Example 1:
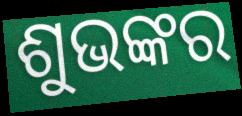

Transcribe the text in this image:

ଶୁଭଙ୍କର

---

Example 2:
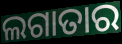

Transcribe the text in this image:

ଲଗାତାର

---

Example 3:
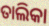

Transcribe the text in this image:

ତାଲିକା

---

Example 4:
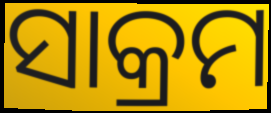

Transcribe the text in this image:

ସାକ୍ରମ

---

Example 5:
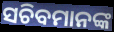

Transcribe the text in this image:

ସଚିବମାନଙ୍କ